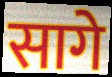
सागे